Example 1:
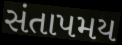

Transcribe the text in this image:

સંતાપમય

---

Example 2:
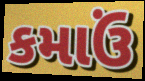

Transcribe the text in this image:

કમાઉં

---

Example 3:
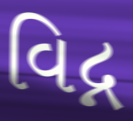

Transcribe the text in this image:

વિદ્ન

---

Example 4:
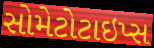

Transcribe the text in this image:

સોમેટોટાઇપ્સ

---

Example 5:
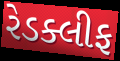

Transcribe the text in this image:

રેડક્લીફ